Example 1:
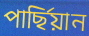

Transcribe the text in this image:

পাৰ্ছিয়ান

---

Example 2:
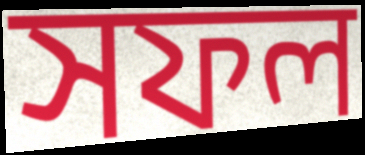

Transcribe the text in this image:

সফল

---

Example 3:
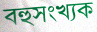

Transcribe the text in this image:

বহুসংখ্যক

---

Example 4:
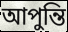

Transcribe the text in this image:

আপুন্তি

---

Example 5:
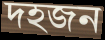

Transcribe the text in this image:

দহজন